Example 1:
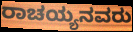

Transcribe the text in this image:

ರಾಚಯ್ಯನವರು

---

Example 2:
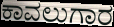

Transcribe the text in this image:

ಕಾವಲುಗಾರ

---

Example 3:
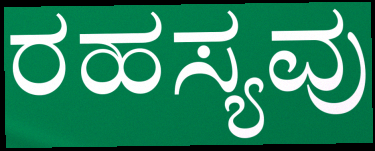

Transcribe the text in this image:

ರಹಸ್ಯವು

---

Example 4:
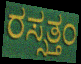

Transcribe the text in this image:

ರಸ್ಸತ್ತಂ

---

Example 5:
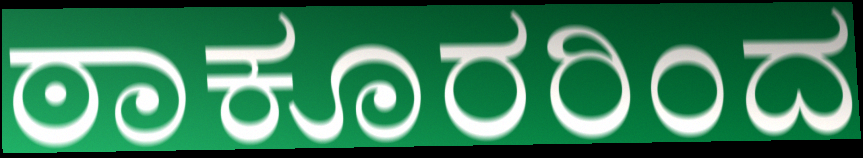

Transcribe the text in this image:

ಠಾಕೂರರಿಂದ